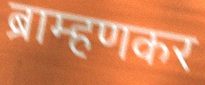
ब्राम्हणकर